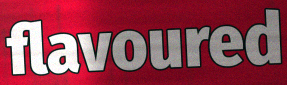
flavoured